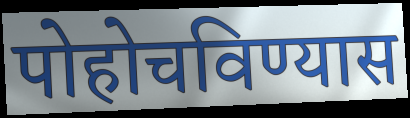
पोहोचविण्यास